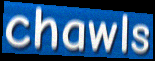
chawls